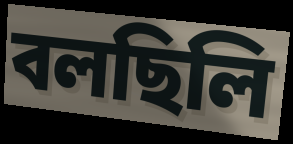
বলছিলি